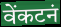
वेंकटनं